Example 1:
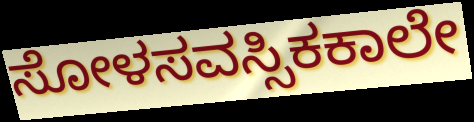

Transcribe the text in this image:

ಸೋಳಸವಸ್ಸಿಕಕಾಲೇ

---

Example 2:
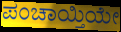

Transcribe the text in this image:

ಪಂಚಾಯ್ತಿಯೇ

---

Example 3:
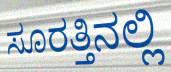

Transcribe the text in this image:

ಸೂರತ್ತಿನಲ್ಲಿ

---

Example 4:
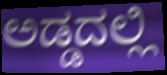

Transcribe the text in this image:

ಅಡ್ಡದಲ್ಲಿ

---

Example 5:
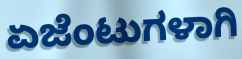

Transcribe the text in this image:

ಏಜೆಂಟುಗಳಾಗಿ